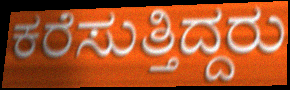
ಕರೆಸುತ್ತಿದ್ದರು